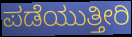
ಪಡೆಯುತ್ತೀರಿ